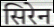
सिरेन